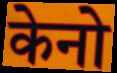
केनो